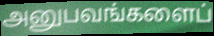
அனுபவங்களைப்